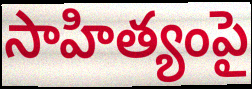
సాహిత్యంపై